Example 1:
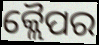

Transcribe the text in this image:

କ୍ଲୈପର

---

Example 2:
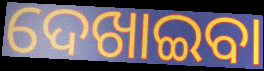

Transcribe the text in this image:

ଦେଖାଇବା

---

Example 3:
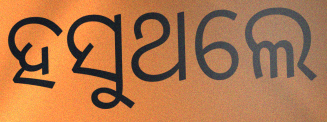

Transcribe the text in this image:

ହସୁଥଲେ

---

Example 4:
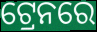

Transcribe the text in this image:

ଟ୍ରେନରେ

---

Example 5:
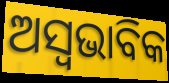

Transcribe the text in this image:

ଅସ୍ୱଭାବିକ